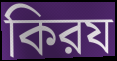
কিরয